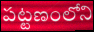
పట్టణంలోని